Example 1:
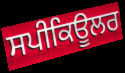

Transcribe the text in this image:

ਸਪੀਕਿਊਲਰ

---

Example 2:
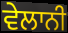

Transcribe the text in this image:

ਵੇਲਾਨੀ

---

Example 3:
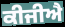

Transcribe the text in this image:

ਕੀਜੀਐ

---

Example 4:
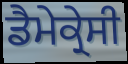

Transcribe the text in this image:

ਡੈਮੇਕ੍ਰੇਸੀ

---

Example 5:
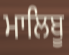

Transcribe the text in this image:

ਮਾਲਿਬੂ